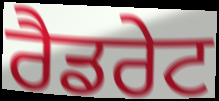
ਰੈਡਰੇਟ